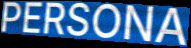
PERSONA